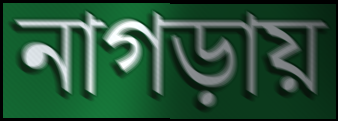
নাগড়ায়